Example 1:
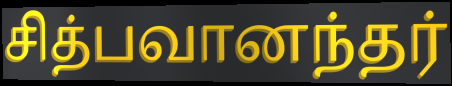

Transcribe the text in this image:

சித்பவானந்தர்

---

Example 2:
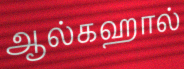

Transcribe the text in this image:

ஆல்கஹால்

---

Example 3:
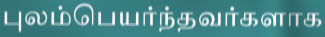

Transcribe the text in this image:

புலம்பெயர்ந்தவர்களாக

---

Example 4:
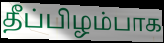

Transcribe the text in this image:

தீப்பிழம்பாக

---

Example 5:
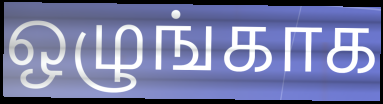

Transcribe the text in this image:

ஒழுங்காக